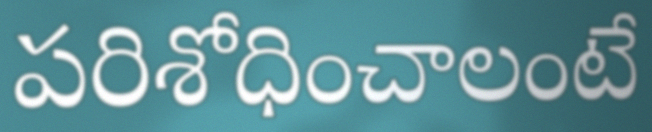
పరిశోధించాలంటే